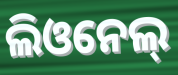
ଲିଓନେଲ୍